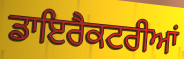
ਡਾਇਰੈਕਟਰੀਆਂ